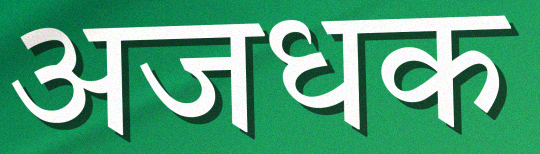
अजधक